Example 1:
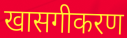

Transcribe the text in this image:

खासगीकरण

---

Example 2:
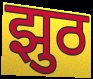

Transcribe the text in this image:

झुठ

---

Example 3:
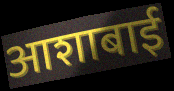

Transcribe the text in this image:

आशाबाई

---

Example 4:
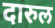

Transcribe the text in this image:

दारुल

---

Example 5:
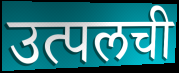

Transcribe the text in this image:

उत्पलची